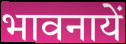
भावनायें